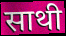
साथी